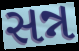
સન્ન